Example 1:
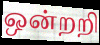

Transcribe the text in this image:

ஒன்றறி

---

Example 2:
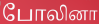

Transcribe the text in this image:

போலினா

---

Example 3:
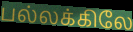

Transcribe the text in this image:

பல்லக்கிலே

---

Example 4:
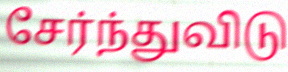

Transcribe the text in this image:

சேர்ந்துவிடு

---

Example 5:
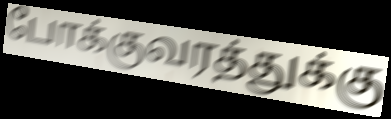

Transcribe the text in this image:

போக்குவரத்துக்கு